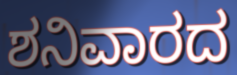
ಶನಿವಾರದ